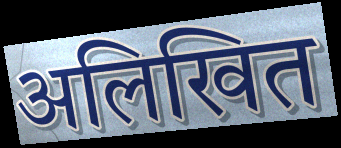
अलिखित